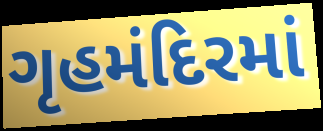
ગૃહમંદિરમાં